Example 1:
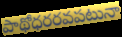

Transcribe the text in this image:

పాథోధరరవపటునా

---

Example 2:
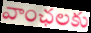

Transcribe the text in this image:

వాంఛలకు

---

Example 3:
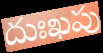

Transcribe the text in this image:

దుఃఖపు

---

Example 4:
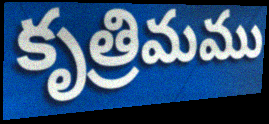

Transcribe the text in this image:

కృత్రిమము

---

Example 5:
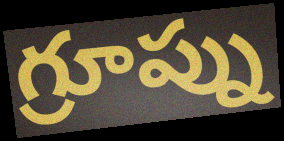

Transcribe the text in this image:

గ్రూప్ను